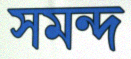
সমন্দ